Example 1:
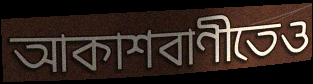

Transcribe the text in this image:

আকাশবাণীতেও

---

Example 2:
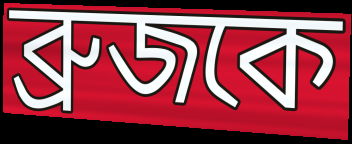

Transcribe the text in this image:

ব্রুজকে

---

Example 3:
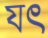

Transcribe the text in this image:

যৎ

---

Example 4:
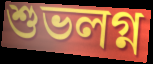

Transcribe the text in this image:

শুভলগ্ন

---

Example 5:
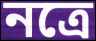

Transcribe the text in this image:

নত্রে